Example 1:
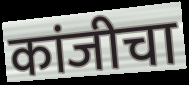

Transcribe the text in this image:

कांजीचा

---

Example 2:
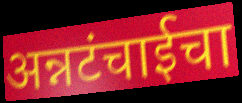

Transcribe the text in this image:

अन्नटंचाईचा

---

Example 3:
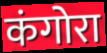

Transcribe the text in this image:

कंगोरा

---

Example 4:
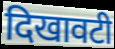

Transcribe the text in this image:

दिखावटी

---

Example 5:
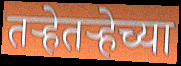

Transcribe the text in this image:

तऱ्हेतऱ्हेच्या